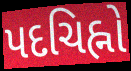
પદચિહ્નો